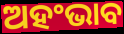
ଅହଂଭାବ